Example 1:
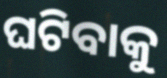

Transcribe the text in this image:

ଘଟିବାକୁ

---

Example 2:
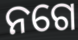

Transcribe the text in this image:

ନଗେ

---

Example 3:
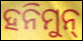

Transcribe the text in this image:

ହନିମୁନ୍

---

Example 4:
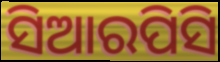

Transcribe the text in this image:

ସିଆରପିସି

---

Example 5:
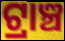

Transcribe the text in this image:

ଟ୍ରାଞ୍ଚ